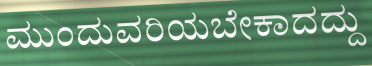
ಮುಂದುವರಿಯಬೇಕಾದದ್ದು